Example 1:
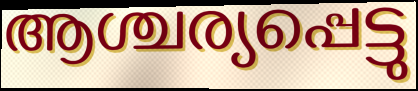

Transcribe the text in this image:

ആശ്ചര്യപ്പെട്ടു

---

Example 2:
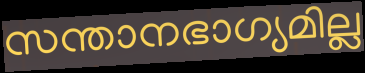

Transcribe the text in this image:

സന്താനഭാഗ്യമില്ല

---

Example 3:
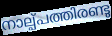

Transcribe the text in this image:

നാല്പ്പത്തിരണ്ടു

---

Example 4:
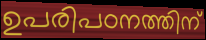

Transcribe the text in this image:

ഉപരിപഠനത്തിന്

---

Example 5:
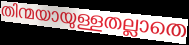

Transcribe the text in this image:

തിന്മയായുള്ളതല്ലാതെ